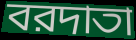
বরদাতা